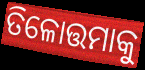
ତିଳୋତ୍ତମାକୁ